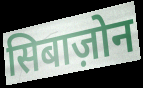
सिबाज़ोन